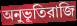
অনুভূতিরাজি